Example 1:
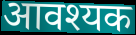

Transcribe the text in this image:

आवश्यक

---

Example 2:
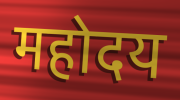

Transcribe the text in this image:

महोदय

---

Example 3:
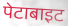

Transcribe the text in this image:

पेटाबाइट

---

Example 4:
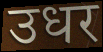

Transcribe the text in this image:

उधर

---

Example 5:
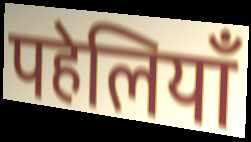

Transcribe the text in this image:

पहेलियाँ